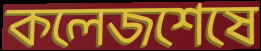
কলেজশেষে